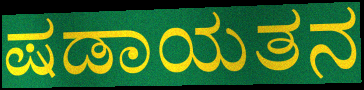
ಷಡಾಯತನ